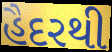
હૈદરથી